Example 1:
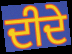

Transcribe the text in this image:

ਦੀਦੇ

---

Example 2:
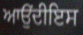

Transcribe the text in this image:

ਆਉਂਦੀਇਸ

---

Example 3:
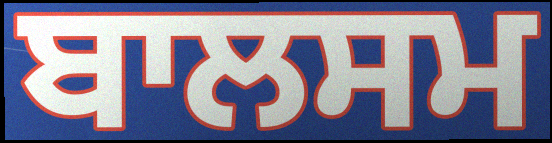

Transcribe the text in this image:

ਬਾਲਸਮ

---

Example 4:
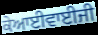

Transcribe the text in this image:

ਕੇਆਈਵਾਈਜੀ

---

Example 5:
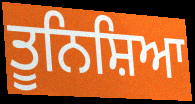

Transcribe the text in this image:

ਤੂਨਿਸ਼ਿਆ